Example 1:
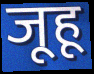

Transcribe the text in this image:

जूहू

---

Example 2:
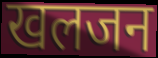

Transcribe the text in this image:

खलजन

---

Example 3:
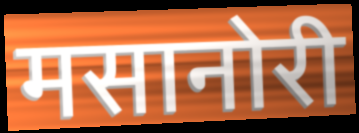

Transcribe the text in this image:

मसानोरी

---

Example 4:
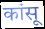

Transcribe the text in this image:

कांसू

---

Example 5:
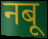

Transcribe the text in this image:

नबू